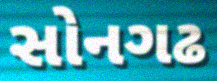
સોનગઢ